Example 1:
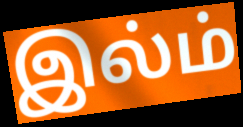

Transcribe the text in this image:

இல்ம்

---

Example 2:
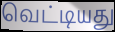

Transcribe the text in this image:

வெட்டியது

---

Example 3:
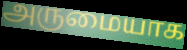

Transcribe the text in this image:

அருமையாக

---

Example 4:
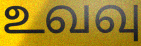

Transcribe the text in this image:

உவவு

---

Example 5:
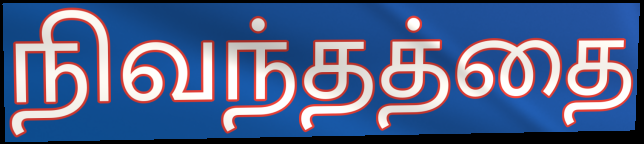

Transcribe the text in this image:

நிவந்தத்தை